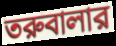
তরুবালার